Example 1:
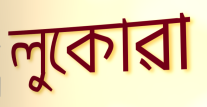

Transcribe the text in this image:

লুকোৱা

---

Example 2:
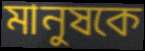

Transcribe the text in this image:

মানুষকে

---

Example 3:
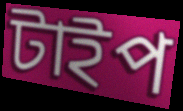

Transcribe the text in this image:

টাইপ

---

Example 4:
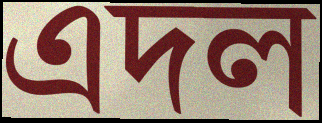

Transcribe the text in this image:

এদল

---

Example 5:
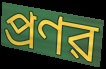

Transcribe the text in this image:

প্ৰণৱ